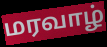
மரவாழ்